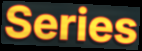
Series